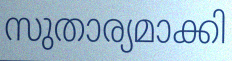
സുതാര്യമാക്കി